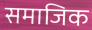
समाजिक